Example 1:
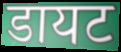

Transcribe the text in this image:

डायट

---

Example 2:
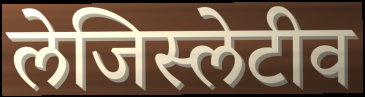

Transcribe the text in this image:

लेजिस्लेटीव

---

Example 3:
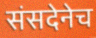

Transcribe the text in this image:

संसदेनेच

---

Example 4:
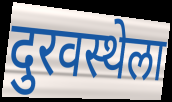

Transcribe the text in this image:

दुरवस्थेला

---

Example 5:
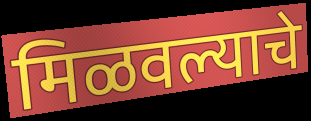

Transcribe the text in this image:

मिळवल्याचे